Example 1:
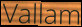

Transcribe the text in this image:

Vallam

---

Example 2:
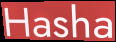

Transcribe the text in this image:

Hasha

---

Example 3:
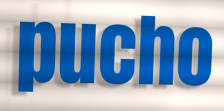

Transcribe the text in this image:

pucho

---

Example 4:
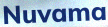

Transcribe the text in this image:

Nuvama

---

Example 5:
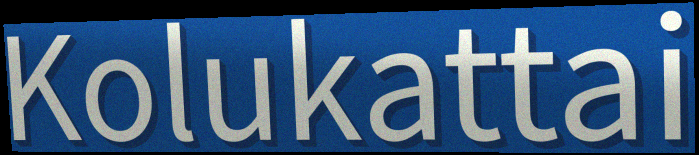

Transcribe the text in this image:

Kolukattai